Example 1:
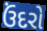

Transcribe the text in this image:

ઉંદરો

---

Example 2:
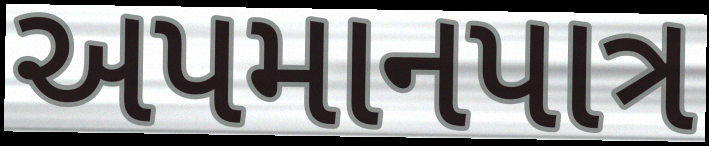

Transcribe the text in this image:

અપમાનપાત્ર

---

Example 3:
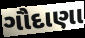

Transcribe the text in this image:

ગૌદાણા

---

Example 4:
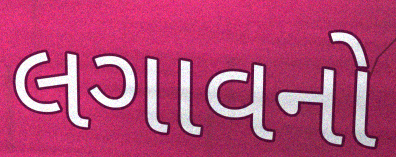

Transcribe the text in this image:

લગાવનો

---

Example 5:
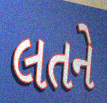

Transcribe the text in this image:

લતને